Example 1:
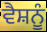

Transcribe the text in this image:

ਵੈਸ਼ਨੂੰ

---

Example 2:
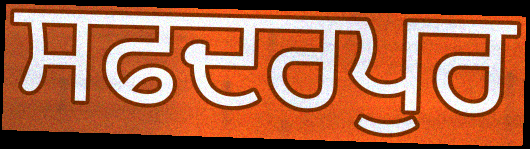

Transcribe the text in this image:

ਸਫਦਰਪੁਰ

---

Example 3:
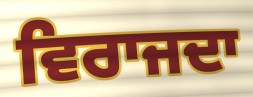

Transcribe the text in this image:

ਵਿਰਾਜਦਾ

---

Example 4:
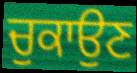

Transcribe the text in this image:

ਚੁਕਾਉਣ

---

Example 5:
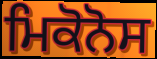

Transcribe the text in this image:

ਮਿਕੋਨੋਸ